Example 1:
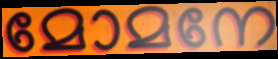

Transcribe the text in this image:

മോമനേ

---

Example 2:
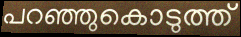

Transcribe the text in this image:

പറഞ്ഞുകൊടുത്ത്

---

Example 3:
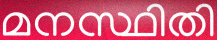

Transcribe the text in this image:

മനസ്ഥിതി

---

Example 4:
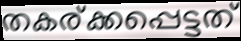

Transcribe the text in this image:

തകര്ക്കപ്പെട്ടത്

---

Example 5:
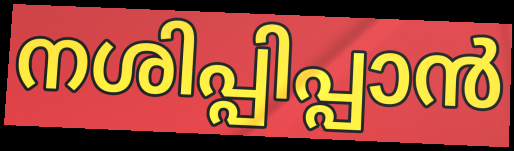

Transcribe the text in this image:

നശിപ്പിപ്പാൻ